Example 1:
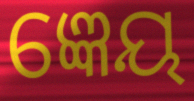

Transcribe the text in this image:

ଜ୍ଞେୟ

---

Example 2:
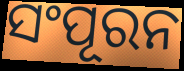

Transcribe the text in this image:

ସଂପୂରନ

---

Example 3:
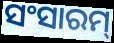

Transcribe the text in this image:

ସଂସାରମ୍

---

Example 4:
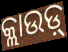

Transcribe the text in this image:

କ୍ଲାଉଡ଼୍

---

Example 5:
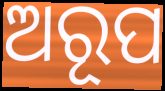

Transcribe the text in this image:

ଅରୂପ